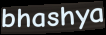
bhashya